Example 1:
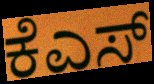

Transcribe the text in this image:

ಕೆಎಸ್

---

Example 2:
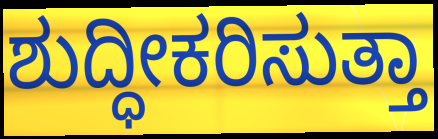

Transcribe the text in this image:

ಶುದ್ಧೀಕರಿಸುತ್ತಾ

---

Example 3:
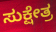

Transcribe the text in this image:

ಸುಕ್ಷೇತ್ರ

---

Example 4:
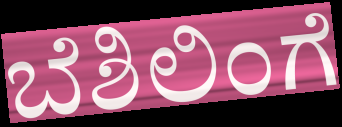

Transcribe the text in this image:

ಬೆಶಿಲಿಂಗೆ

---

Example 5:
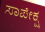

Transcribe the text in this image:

ಸಾಪೇಕ್ಷ